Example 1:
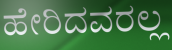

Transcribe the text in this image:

ಹೇರಿದವರಲ್ಲ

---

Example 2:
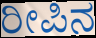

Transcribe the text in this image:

ರೀಪಿನ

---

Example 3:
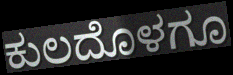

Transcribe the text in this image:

ಕುಲದೊಳಗೂ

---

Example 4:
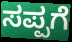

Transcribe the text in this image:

ಸಪ್ಪಗೆ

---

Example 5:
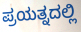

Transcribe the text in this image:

ಪ್ರಯತ್ನದಲ್ಲಿ